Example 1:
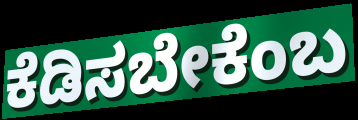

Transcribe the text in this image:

ಕೆಡಿಸಬೇಕೆಂಬ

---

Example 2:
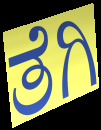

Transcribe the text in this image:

ತೆಗಿ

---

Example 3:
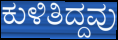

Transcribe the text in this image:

ಕುಳಿತಿದ್ದವು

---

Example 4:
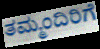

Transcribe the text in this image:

ತಮ್ಮಂದಿರಿಗೆ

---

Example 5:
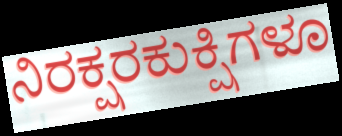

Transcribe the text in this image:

ನಿರಕ್ಷರಕುಕ್ಷಿಗಳೂ